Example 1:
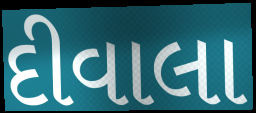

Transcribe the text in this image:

દીવાલા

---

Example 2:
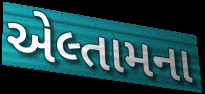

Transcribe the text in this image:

એલ્તામના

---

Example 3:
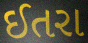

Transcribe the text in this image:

ઈતરા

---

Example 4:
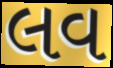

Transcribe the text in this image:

લવ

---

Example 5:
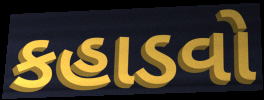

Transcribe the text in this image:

કહાડવો